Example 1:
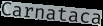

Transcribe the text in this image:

Carnataca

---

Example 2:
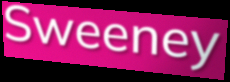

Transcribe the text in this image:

Sweeney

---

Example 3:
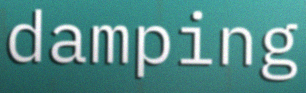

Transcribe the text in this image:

damping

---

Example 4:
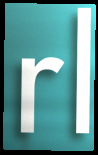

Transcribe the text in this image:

rl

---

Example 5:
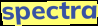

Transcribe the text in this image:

spectra